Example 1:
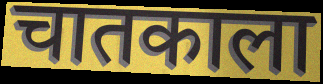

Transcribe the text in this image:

चातकाला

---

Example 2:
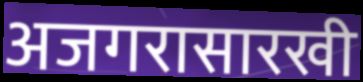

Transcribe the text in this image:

अजगरासारखी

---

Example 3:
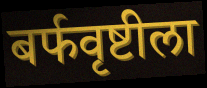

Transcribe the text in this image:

बर्फवृष्टीला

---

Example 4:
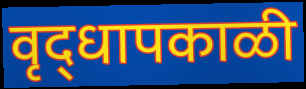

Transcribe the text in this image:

वृद्धापकाळी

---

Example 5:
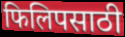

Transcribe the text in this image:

फिलिपसाठी